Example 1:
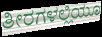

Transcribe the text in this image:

ತೀರಗಳಲ್ಲಿಯೂ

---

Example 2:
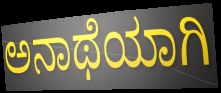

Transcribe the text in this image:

ಅನಾಥೆಯಾಗಿ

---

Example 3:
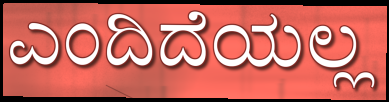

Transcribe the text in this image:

ಎಂದಿದೆಯಲ್ಲ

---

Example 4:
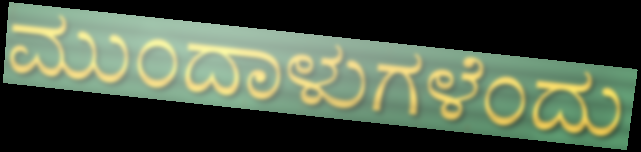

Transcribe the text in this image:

ಮುಂದಾಳುಗಳೆಂದು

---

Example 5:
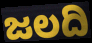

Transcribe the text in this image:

ಜಲದಿ